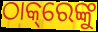
ଠାକ୍‌ରେଙ୍କୁ